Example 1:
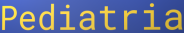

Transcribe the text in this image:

Pediatria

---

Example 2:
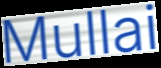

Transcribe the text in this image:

Mullai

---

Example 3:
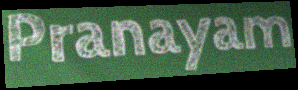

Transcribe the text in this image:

Pranayam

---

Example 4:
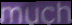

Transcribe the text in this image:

much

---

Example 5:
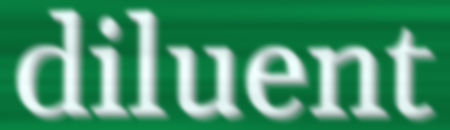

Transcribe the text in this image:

diluent